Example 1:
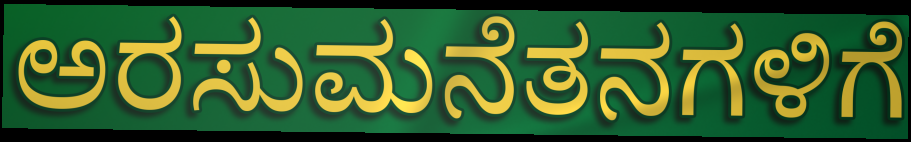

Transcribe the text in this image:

ಅರಸುಮನೆತನಗಳಿಗೆ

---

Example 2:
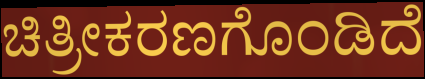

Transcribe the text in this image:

ಚಿತ್ರೀಕರಣಗೊಂಡಿದೆ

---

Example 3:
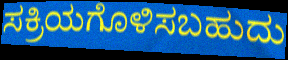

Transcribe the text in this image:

ಸಕ್ರಿಯಗೊಳಿಸಬಹುದು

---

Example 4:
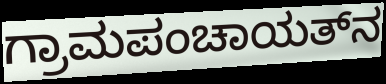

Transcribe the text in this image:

ಗ್ರಾಮಪಂಚಾಯತ್‌ನ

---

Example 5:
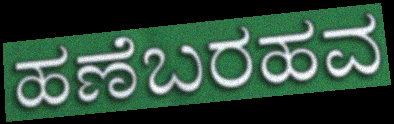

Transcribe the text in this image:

ಹಣೆಬರಹವ